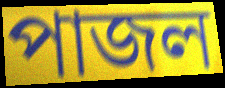
পাজল